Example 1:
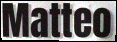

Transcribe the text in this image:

Matteo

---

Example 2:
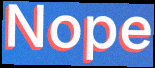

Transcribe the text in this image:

Nope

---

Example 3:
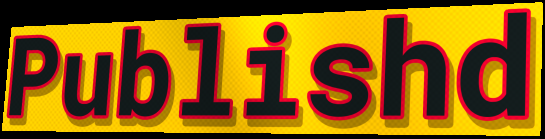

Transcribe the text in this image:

Publishd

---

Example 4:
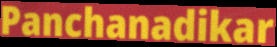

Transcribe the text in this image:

Panchanadikar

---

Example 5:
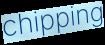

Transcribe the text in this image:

chipping